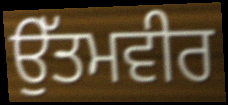
ਉੱਤਮਵੀਰ